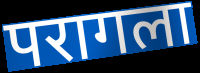
परागला